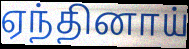
ஏந்தினாய்